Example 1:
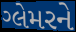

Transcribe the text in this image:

ગ્લેમરને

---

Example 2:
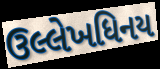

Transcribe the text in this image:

ઉલ્લેખધિનય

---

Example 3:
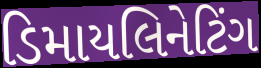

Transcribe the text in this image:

ડિમાયલિનેટિંગ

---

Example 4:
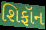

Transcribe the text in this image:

શિફૉન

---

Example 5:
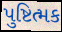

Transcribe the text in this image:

પુષ્ટિત્મક